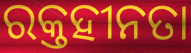
ରକ୍ତହୀନତା